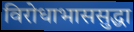
विरोधाभाससुद्धा